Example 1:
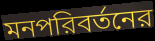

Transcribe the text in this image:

মনপরিবর্তনের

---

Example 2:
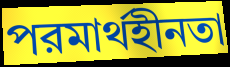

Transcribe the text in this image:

পরমার্থহীনতা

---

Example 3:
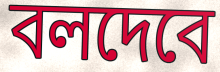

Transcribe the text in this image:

বলদেবে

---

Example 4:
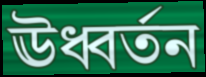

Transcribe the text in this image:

ঊধ্বর্তন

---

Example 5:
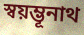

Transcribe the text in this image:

স্বয়ম্ভূনাথ